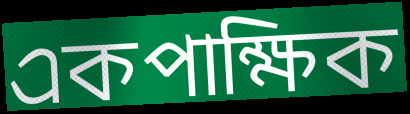
একপাক্ষিক